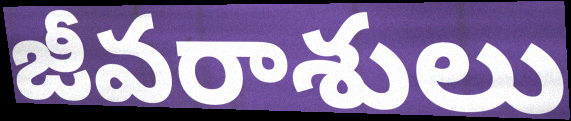
జీవరాశులు